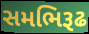
સમભિરૂઢ